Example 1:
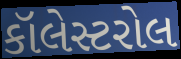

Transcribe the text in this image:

કૉલેસ્ટરોલ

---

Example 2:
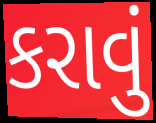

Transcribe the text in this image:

કરાવું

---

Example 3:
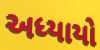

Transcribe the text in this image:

અધ્યાયો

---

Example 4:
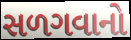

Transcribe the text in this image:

સળગવાનો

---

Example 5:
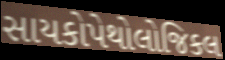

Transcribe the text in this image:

સાયકોપેથોલોજિકલ